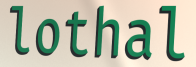
lothal